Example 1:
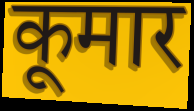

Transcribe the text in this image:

कूमार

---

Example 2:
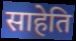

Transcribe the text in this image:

साहेति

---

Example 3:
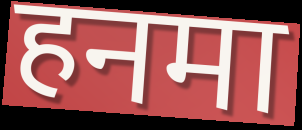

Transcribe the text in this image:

हनमा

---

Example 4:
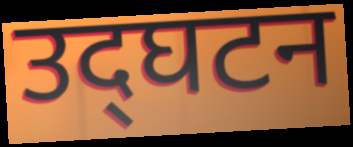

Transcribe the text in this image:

उद्घटन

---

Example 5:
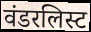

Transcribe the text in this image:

वंडरलिस्ट